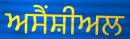
ਅਸੈਂਸ਼ੀਅਲ